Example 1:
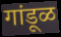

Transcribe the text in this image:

गांडूळ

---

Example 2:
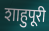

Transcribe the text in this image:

शाहुपूरी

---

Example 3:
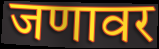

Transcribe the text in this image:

जणावर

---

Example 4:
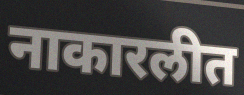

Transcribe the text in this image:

नाकारलीत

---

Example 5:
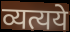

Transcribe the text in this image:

व्यत्यये